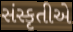
સંસ્કૃતીએ